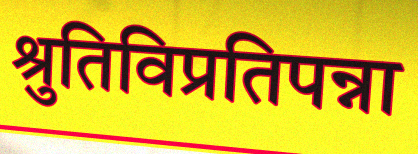
श्रुतिविप्रतिपन्ना